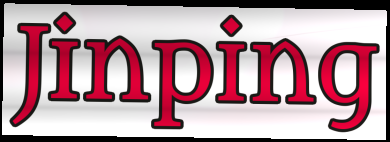
Jinping